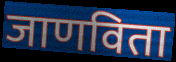
जाणविता